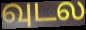
வுடல